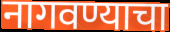
नागवण्याचा